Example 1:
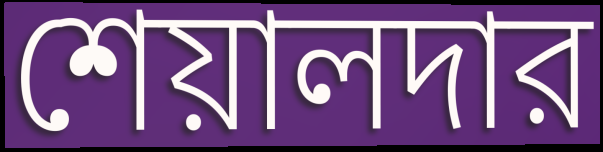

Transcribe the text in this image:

শেয়ালদার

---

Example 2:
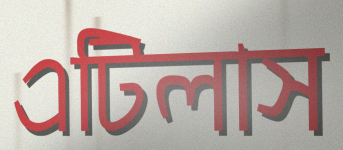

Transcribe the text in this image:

এটিলাস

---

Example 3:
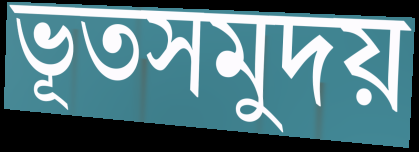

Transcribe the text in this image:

ভূতসমুদয়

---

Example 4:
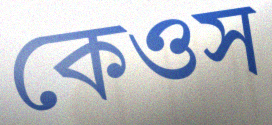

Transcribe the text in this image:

কেওস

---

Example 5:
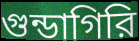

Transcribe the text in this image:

গুন্ডাগিরি